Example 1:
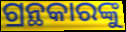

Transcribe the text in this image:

ଗ୍ରନ୍ଥକାରଙ୍କୁ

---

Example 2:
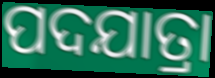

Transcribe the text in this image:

ପଦଯାତ୍ରା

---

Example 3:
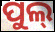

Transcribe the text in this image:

ପୁଲ୍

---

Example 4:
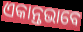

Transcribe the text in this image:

ଏକାନ୍ତଭାବେ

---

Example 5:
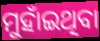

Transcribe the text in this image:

ମୁହାଁଇଥିବା